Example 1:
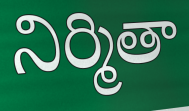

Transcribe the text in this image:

నిర్మితా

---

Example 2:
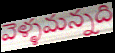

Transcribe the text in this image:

వెళ్ళమన్నది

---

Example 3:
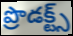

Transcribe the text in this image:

ప్రొడక్ట్స్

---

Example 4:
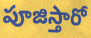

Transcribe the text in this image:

పూజిస్తారో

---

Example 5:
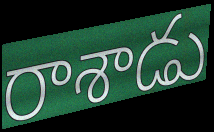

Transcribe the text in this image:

రాశాడు